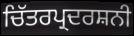
ਚਿੱਤਰਪ੍ਰਦਰਸ਼ਨੀ